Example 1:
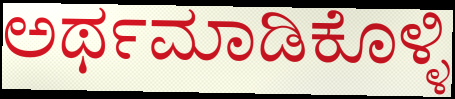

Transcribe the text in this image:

ಅರ್ಥಮಾಡಿಕೊಳ್ಳಿ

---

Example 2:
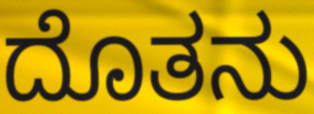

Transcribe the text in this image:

ದೊತನು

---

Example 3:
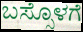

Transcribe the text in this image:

ಬಸ್ಸೊಳಗೆ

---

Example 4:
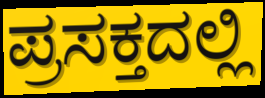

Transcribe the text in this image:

ಪ್ರಸಕ್ತದಲ್ಲಿ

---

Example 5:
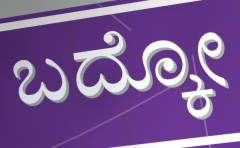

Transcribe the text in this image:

ಬದ್ಕೋ